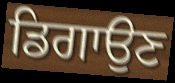
ਡਿਗਾਉਣ